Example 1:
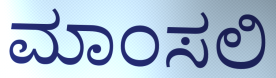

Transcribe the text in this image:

ಮಾಂಸಲಿ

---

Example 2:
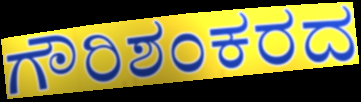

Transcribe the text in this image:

ಗೌರಿಶಂಕರದ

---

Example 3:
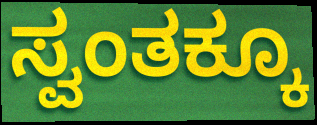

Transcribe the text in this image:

ಸ್ವಂತಕ್ಕೂ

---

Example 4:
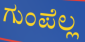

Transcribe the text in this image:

ಗುಂಪೆಲ್ಲ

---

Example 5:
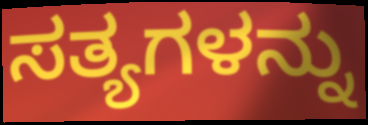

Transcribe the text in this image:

ಸತ್ಯಗಳನ್ನು